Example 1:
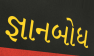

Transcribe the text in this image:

જ્ઞાનબોધ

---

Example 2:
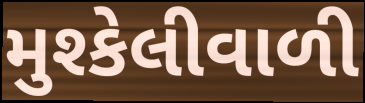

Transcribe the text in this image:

મુશ્કેલીવાળી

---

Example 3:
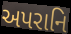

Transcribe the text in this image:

અપરાનિ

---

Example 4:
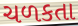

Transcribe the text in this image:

ચળકતા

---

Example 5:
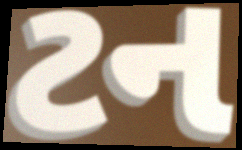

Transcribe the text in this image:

ટન